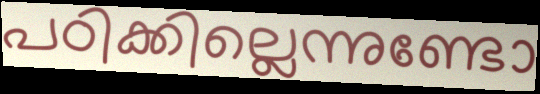
പഠിക്കില്ലെന്നുണ്ടോ